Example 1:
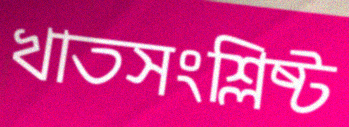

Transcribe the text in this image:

খাতসংশ্লিষ্ট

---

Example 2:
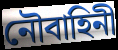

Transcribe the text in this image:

নৌবাহিনী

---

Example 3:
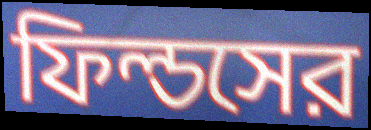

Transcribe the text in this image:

ফিল্ডসের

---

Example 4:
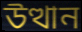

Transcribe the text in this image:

উত্থান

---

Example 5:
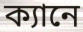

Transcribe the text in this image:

ক্যানে